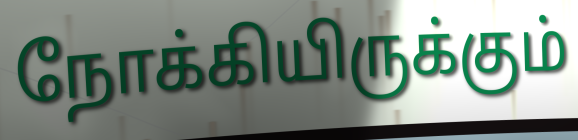
நோக்கியிருக்கும்